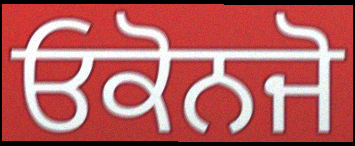
ਓਕੋਨਜੋ